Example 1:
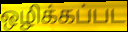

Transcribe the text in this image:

ஒழிக்கப்பட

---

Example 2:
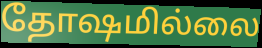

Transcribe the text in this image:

தோஷமில்லை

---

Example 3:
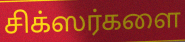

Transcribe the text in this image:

சிக்ஸர்களை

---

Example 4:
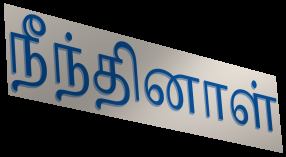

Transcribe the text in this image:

நீந்தினாள்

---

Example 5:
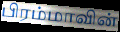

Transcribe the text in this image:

பிரம்மாவின்